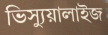
ভিস্যুয়ালাইজ